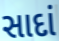
સાદાં